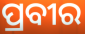
ପ୍ରବୀର